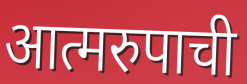
आत्मरुपाची